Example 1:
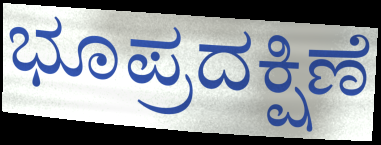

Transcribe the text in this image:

ಭೂಪ್ರದಕ್ಷಿಣೆ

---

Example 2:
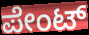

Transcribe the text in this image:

ಪೇಂಟ್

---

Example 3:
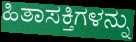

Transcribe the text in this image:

ಹಿತಾಸಕ್ತಿಗಳನ್ನು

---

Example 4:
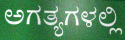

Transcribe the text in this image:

ಅಗತ್ಯಗಳಲ್ಲಿ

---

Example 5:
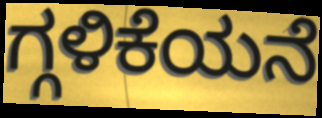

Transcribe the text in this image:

ಗ್ಗಳಿಕೆಯನೆ